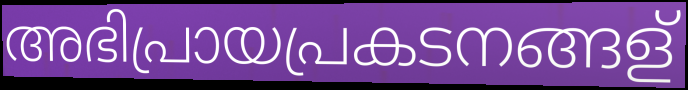
അഭിപ്രായപ്രകടനങ്ങള്